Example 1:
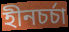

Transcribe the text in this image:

হীনচর্চা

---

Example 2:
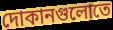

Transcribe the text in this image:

দোকানগুলোতে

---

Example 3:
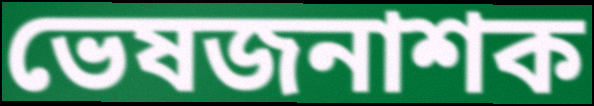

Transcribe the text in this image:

ভেষজনাশক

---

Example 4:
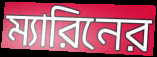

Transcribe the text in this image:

ম্যারিনের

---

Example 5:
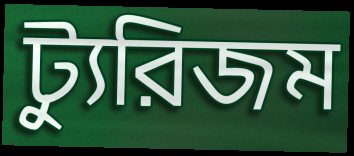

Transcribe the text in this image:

ট্যুরিজম